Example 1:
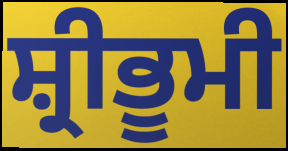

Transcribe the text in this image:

ਸ਼੍ਰੀਭੂਮੀ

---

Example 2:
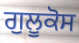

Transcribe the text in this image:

ਗੁਲੂਕੋਸ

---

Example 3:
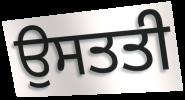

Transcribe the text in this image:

ਉਸਤਤੀ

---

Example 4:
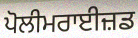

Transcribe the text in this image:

ਪੋਲੀਮਰਾਈਜ਼ਡ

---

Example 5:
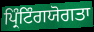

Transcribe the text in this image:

ਪ੍ਰਿੰਟਿੰਗਯੋਗਤਾ